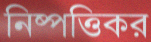
নিষ্পত্তিকর